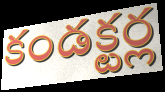
కండక్టర్ల